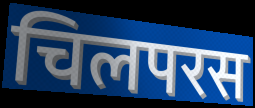
चिलपरस